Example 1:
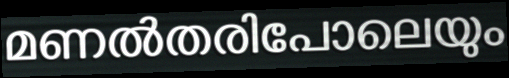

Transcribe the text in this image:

മണൽതരിപോലെയും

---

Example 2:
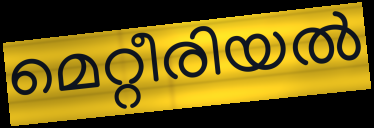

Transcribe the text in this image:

മെറ്റീരിയൽ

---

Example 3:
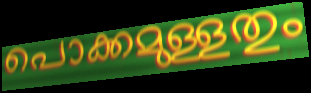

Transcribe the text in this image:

പൊക്കമുള്ളതും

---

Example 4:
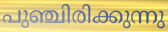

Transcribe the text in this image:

പുഞ്ചിരിക്കുന്നു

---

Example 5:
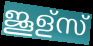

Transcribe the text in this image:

ജൂള്സ്